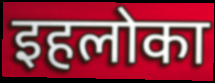
इहलोका